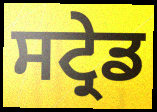
ਸਟ੍ਰੇਡ